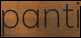
panti